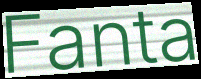
Fanta